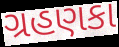
ગ્રહણકા